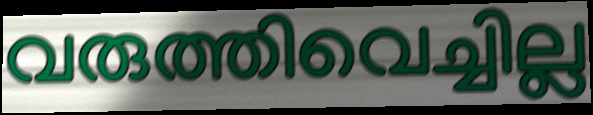
വരുത്തിവെച്ചില്ല